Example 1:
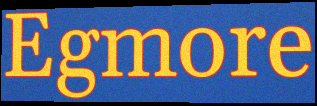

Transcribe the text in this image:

Egmore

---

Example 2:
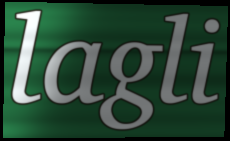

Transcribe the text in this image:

lagli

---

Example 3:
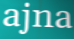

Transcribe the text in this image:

ajna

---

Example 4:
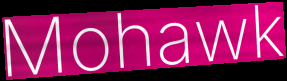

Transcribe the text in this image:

Mohawk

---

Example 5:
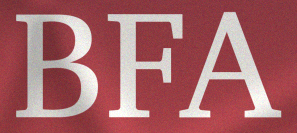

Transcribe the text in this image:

BFA